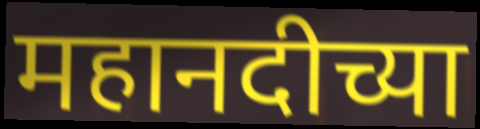
महानदीच्या